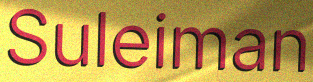
Suleiman